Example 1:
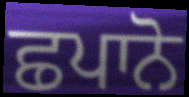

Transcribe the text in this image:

ਛਪਾਨੋ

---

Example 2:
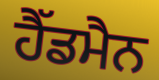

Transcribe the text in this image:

ਹੈੱਡਮੈਨ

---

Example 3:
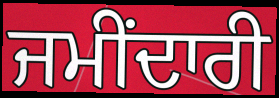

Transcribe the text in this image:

ਜਮੀਂਦਾਰੀ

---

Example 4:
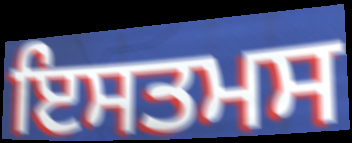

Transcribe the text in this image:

ਇਸਤਮਸ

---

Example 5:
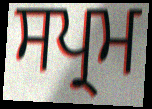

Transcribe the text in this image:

ਸਪ੍ਰਮ